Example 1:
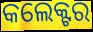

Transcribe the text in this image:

କଲେକ୍ଟର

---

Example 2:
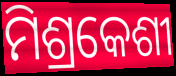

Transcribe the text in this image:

ମିଶ୍ରକେଶୀ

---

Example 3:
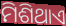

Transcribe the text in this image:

ମିଶିଥାଏ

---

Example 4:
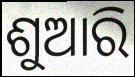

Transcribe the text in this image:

ଶୁଆରି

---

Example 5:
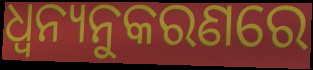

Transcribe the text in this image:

ଧ୍ଵନ୍ୟନୁକରଣରେ